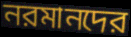
নরমানদের